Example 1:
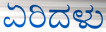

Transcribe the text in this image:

ಏರಿದಳು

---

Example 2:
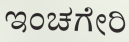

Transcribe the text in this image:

ಇಂಚಗೇರಿ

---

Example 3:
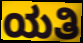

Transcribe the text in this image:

ಯತಿ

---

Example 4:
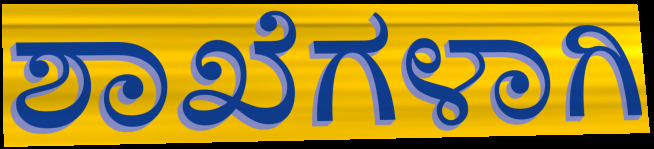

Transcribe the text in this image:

ಶಾಖೆಗಳಾಗಿ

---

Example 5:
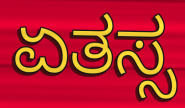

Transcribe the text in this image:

ಏತಸ್ಸ